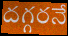
దగ్గరనే